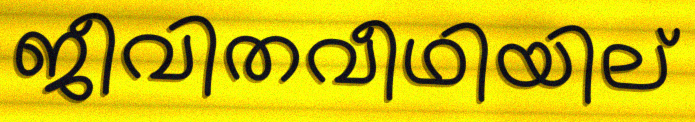
ജീവിതവീഥിയില്